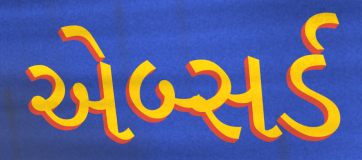
એબ્સર્ડ